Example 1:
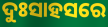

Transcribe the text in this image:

ଦୁଃସାହସରେ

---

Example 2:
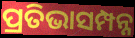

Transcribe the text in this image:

ପ୍ରତିଭାସମ୍ପନ୍ନ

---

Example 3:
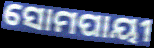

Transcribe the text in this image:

ସୋମପାୟୀ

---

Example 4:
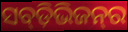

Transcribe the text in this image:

ସବ୍‍ଡ଼ିଭିଜନ୍‍ର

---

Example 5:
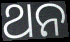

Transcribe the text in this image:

ଥନ